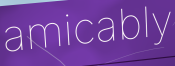
amicably